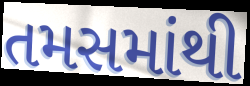
તમસમાંથી